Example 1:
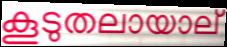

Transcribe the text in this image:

കൂടുതലായാല്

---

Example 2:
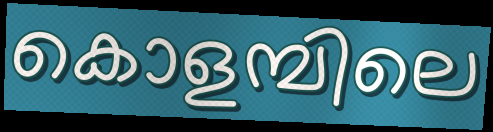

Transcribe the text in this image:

കൊളമ്പിലെ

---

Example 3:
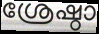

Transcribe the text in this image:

ശ്രേഷ്ഠാ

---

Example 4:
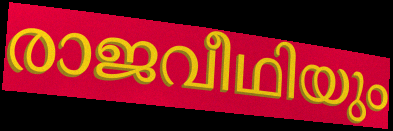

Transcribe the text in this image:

രാജവീഥിയും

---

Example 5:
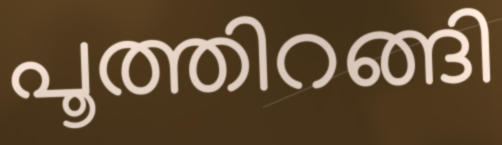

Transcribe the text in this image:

പൂത്തിറങ്ങി